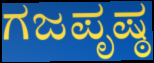
ಗಜಪೃಷ್ಠ